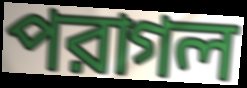
পরাগল